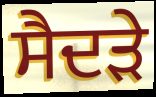
ਸੈਦੜੇ